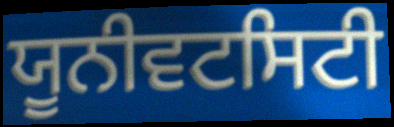
ਯੂਨੀਵਟਸਿਟੀ